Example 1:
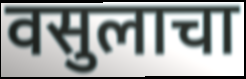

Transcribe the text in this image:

वसुलाचा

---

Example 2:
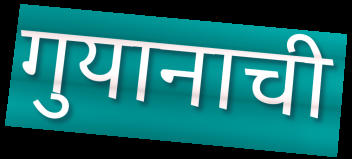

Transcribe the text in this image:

गुयानाची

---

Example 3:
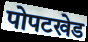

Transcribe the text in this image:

पोपटखेड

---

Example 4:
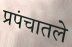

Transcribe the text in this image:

प्रपंचातले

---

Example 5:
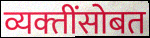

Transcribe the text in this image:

व्यक्‍तींसोबत